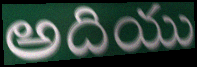
అదియు